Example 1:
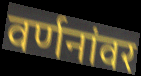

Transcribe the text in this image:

वर्णनांवर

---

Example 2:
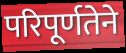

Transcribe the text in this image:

परिपूर्णतेने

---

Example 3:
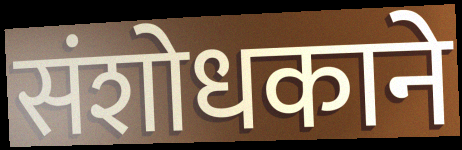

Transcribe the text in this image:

संशोधकाने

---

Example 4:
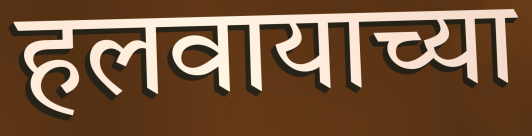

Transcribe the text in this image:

हलवायाच्या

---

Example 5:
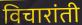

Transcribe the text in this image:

विचारांती